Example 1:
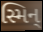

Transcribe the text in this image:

સ્મિન્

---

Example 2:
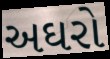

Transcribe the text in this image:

અઘરો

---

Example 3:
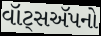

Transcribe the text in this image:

વૉટ્સઍપનો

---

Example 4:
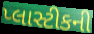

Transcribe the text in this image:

પ્લાસ્ટીકની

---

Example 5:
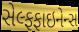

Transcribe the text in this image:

સેલ્ફફાઇનેન્સ